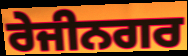
ਰੇਜੀਨਗਰ